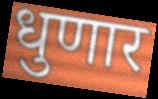
धुणार